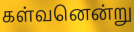
கள்வனென்று